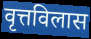
वृत्तविलास